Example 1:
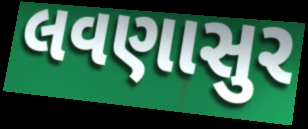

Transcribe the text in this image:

લવણાસુર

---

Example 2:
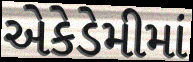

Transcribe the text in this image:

એકેડેમીમાં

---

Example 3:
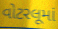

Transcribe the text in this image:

વોટરલૂમાં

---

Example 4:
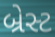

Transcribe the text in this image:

બ્રેસ્ટ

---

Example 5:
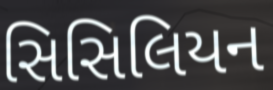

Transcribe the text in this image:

સિસિલિયન